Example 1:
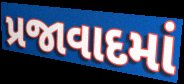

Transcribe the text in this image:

પ્રજાવાદમાં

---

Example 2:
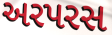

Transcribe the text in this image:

અરપરસ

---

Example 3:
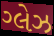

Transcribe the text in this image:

ગ્લેઝ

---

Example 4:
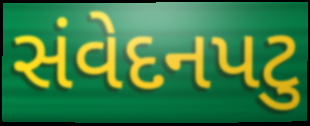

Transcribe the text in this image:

સંવેદનપટુ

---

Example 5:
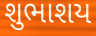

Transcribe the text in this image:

શુભાશય